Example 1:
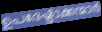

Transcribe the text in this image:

ഉപദേഷ്ടാക്കന്മാർ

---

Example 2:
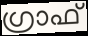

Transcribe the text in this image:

ഗ്രാഫ്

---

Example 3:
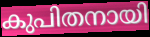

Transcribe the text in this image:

കുപിതനായി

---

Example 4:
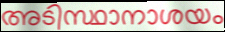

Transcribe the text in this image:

അടിസ്ഥാനാശയം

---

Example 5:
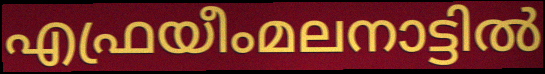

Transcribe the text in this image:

എഫ്രയീംമലനാട്ടിൽ